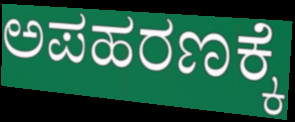
ಅಪಹರಣಕ್ಕೆ